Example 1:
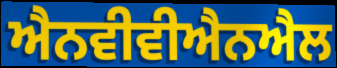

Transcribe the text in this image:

ਐਨਵੀਵੀਐਨਐਲ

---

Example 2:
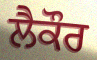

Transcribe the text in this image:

ਲੈਕੌਰ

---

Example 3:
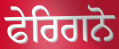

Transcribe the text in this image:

ਫੇਰਿਗਨੋ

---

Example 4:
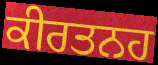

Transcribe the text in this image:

ਕੀਰਤਨਹ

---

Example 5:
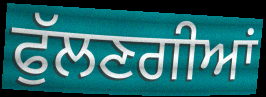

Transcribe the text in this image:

ਫੁੱਲਣਗੀਆਂ